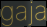
gaja